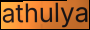
athulya